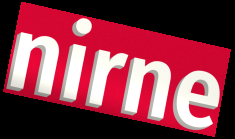
nirne